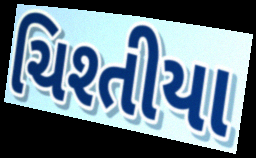
ચિશ્તીયા